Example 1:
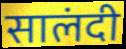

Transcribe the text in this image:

सालंदी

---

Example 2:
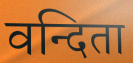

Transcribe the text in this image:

वन्दिता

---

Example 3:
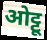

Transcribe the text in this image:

ओट्टू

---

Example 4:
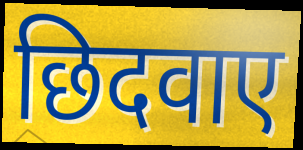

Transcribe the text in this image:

छिदवाए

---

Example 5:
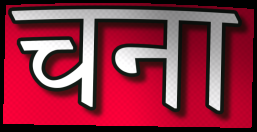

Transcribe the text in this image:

चना